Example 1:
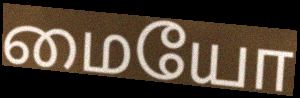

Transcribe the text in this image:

மையோ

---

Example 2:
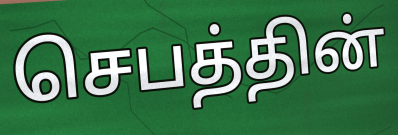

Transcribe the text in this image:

செபத்தின்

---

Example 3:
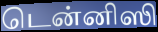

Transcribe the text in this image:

டென்னிஸி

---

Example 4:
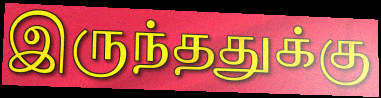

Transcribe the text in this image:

இருந்ததுக்கு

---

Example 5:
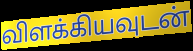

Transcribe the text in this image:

விளக்கியவுடன்